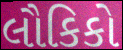
લૌકિકો